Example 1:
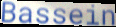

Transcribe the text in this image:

Bassein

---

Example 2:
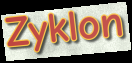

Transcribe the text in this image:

Zyklon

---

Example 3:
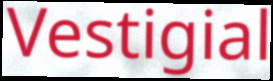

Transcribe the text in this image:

Vestigial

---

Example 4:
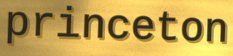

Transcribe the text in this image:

princeton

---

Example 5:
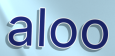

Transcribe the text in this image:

aloo